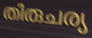
തിരുചര്യ